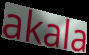
akala